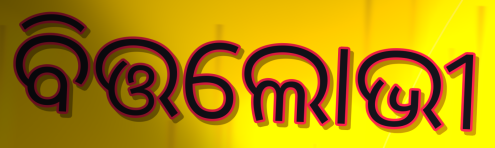
ବିତ୍ତଲୋଭୀ